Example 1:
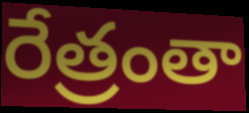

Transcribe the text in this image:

రేత్రంతా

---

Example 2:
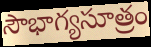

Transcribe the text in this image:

సౌభాగ్యసూత్రం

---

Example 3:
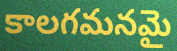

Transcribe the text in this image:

కాలగమనమై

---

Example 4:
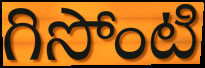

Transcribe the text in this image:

గిసోంటి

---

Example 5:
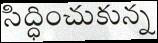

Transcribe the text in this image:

సిద్ధించుకున్న